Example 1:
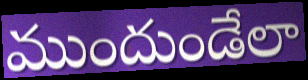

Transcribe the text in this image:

ముందుండేలా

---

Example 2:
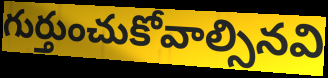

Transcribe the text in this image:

గుర్తుంచుకోవాల్సినవి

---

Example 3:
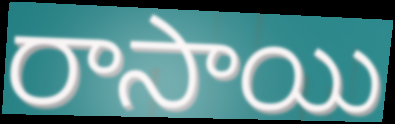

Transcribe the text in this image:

రాసాయి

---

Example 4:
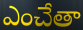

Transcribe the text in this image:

ఎంచేతా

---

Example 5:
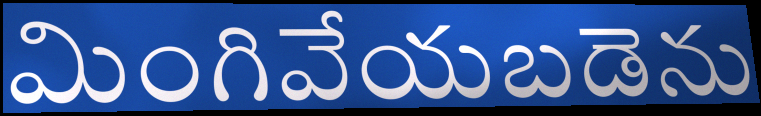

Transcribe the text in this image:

మింగివేయబడెను